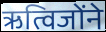
ऋत्विजोंने